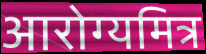
आरोग्यमित्र